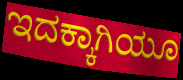
ಇದಕ್ಕಾಗಿಯೂ